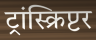
ट्रांस्क्रिप्टर